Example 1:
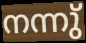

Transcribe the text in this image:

നന്നു്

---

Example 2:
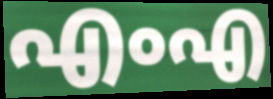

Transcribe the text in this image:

എംഎ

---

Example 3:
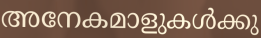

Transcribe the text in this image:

അനേകമാളുകൾക്കു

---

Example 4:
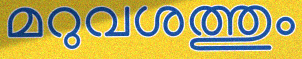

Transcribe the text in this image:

മറുവശത്തും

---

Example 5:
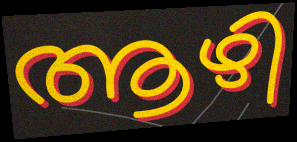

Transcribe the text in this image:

ആഴി